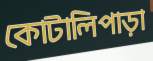
কোটালিপাড়া